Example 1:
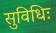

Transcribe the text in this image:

सुविधिः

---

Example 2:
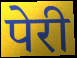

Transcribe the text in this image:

पेरी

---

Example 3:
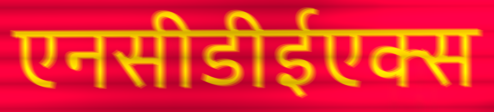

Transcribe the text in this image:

एनसीडीईएक्स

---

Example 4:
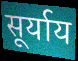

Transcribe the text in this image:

सूर्याय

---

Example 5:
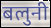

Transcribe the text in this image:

बलुनी